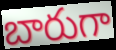
బారుగా